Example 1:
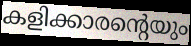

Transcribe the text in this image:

കളിക്കാരന്റെയും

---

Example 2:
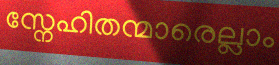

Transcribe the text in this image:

സ്നേഹിതന്മാരെല്ലാം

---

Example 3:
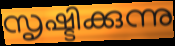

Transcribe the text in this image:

സൃഷ്ടിക്കുന്നു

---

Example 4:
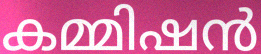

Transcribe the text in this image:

കമ്മിഷൻ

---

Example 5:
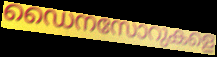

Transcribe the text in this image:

ഡൈനസോറുകളെ